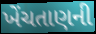
ખેંચતાણની